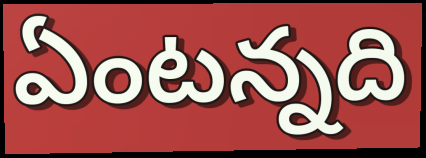
ఏంటన్నది